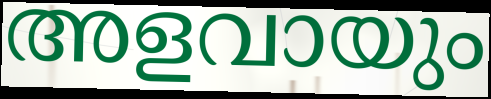
അളവായും